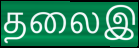
தலைஇ